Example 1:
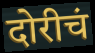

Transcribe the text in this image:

दोरीचं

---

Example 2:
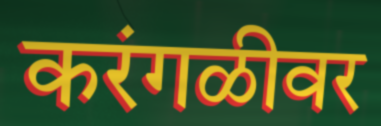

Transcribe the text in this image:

करंगळीवर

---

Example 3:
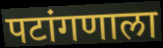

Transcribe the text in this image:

पटांगणाला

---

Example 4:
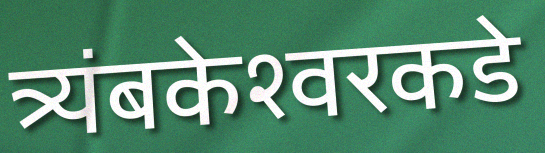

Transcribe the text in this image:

त्र्यंबकेश्वरकडे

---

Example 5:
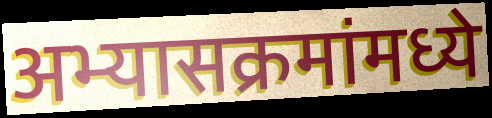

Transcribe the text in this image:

अभ्यासक्रमांमध्ये